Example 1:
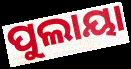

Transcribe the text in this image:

ପୁଲାୟା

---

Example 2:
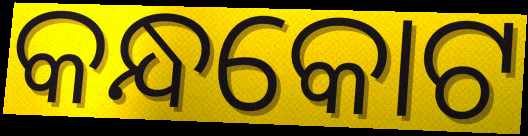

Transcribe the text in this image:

କନ୍ଧକୋଟ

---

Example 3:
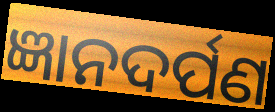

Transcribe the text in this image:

ଜ୍ଞାନଦର୍ପଣ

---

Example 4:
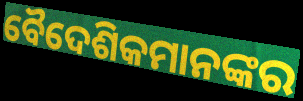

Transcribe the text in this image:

ବୈଦେଶିକମାନଙ୍କର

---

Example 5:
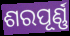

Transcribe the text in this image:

ଶରପୂର୍ଣ୍ଣ